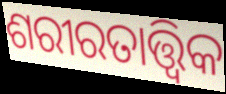
ଶରୀରତାତ୍ତ୍ଵିକ